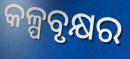
କଳ୍ପବୃକ୍ଷର